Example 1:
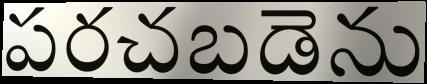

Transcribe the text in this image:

పరచబడెను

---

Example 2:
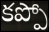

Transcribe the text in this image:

కప్పో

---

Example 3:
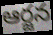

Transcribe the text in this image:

ఆర్జన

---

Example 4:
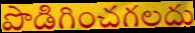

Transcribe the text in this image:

పొడిగించగలదు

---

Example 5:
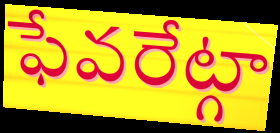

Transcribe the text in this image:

ఫేవరేట్గా